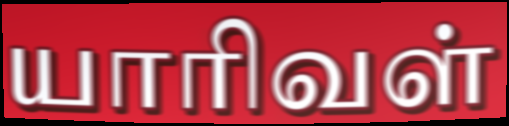
யாரிவள்